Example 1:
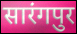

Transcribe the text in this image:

सारंगपुर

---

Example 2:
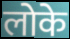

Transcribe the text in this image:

लोके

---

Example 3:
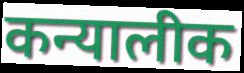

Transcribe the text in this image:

कन्यालीक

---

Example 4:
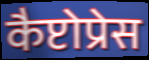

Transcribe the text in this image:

कैप्टोप्रेस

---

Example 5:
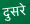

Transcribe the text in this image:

दुसरे